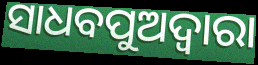
ସାଧବପୁଅଦ୍ୱାରା